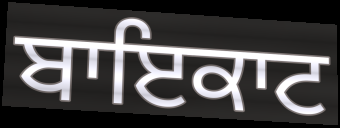
ਬਾਇਕਾਟ